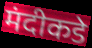
मंदीकडे